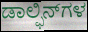
ಡಾಲ್ಫಿನ್‌ಗಳ